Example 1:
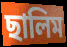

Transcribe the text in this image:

ছালিম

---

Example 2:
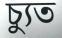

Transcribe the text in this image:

চ্যুত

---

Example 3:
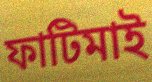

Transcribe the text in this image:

ফাটিমাই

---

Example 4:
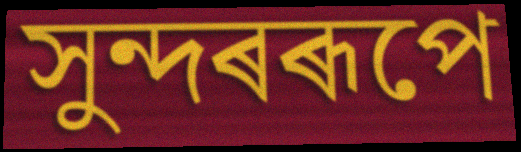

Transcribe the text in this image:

সুন্দৰৰূপে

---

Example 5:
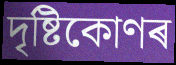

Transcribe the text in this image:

দৃষ্টিকোণৰ